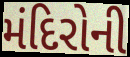
મંદિરોની